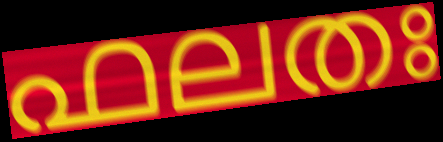
ഫലതഃ